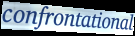
confrontational